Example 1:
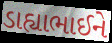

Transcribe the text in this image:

ડાહ્યાભાઈને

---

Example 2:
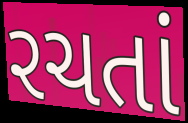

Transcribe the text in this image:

રચતાં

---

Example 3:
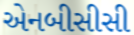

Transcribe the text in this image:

એનબીસીસી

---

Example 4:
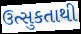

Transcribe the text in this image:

ઉત્સુકતાથી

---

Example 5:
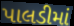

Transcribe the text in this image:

પાલડીમાં